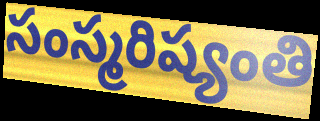
సంస్మరిష్యంతి